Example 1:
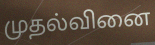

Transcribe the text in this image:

முதல்வினை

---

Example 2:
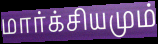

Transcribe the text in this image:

மார்க்சியமும்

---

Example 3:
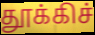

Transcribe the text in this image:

தூக்கிச்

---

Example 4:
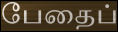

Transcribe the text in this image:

பேதைப்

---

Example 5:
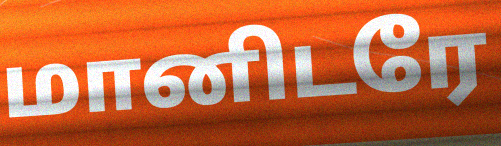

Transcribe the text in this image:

மானிடரே